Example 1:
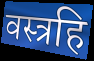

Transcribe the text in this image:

वस्त्रहि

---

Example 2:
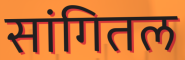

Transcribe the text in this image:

सांगितल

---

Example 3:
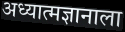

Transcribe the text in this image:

अध्यात्मज्ञानाला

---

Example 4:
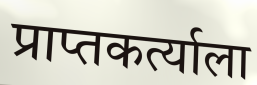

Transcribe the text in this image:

प्राप्तकर्त्याला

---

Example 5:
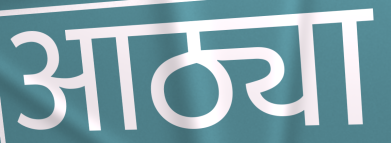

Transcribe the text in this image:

आठ्या